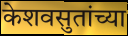
केशवसुतांच्या